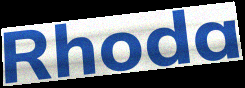
Rhoda